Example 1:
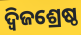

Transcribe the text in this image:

ଦ୍ୱିଜଶ୍ରେଷ୍ଠ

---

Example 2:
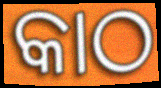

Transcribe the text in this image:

କାଠ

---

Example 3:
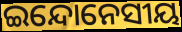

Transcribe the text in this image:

ଇନ୍ଦୋନେସୀୟ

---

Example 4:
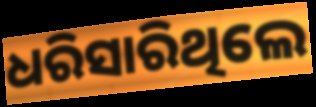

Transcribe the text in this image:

ଧରିସାରିଥିଲେ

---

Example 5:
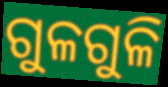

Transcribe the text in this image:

ଗୁଳଗୁଳି